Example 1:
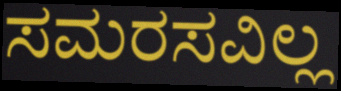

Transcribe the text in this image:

ಸಮರಸವಿಲ್ಲ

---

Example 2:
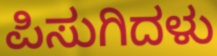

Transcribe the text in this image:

ಪಿಸುಗಿದಳು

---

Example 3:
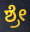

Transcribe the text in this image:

ಶ್ರೇ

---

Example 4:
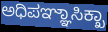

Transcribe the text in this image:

ಅಧಿಪಞ್ಞಾಸಿಕ್ಖಾ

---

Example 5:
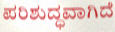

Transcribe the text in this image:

ಪರಿಶುದ್ಧವಾಗಿದೆ